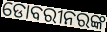
ଡୋବରୀନରଙ୍କ